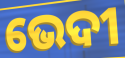
ଭେଦୀ